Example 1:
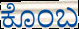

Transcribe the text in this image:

ಕೊಂಬ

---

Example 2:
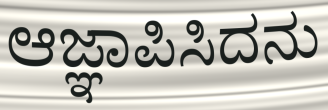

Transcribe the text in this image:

ಆಜ್ಞಾಪಿಸಿದನು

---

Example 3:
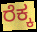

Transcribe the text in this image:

ರೆಕ್ಕ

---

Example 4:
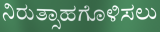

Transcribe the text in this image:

ನಿರುತ್ಸಾಹಗೊಳಿಸಲು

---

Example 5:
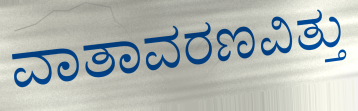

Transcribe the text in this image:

ವಾತಾವರಣವಿತ್ತು